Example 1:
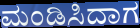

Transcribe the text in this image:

ಮಂಡಿಸಿದಾಗ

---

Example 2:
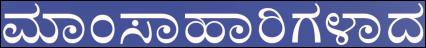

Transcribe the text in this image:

ಮಾಂಸಾಹಾರಿಗಳಾದ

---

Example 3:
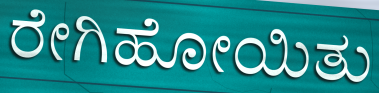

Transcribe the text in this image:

ರೇಗಿಹೋಯಿತು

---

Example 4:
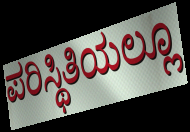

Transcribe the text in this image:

ಪರಿಸ್ಥಿತಿಯಲ್ಲೂ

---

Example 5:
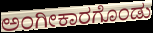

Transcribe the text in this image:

ಅಂಗೀಕಾರಗೊಂಡು